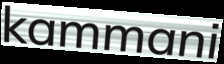
kammani